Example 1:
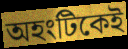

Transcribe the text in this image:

অহংটিকেই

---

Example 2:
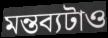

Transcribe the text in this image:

মন্তব্যটাও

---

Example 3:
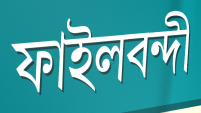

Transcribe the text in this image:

ফাইলবন্দী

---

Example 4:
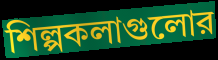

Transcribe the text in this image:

শিল্পকলাগুলোর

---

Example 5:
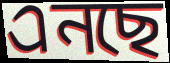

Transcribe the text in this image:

এনছে